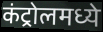
कंट्रोलमध्ये